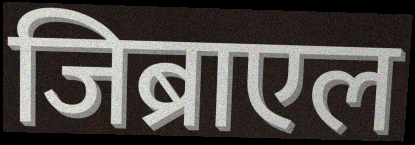
जिब्राएल